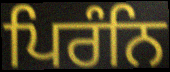
ਪਿਰੰਨਿ